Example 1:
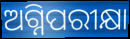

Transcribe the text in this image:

ଅଗ୍ନିପରୀକ୍ଷା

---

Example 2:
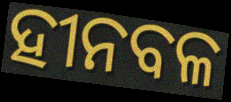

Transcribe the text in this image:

ହୀନବଳ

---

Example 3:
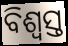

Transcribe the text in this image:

ବିଶ୍ବସ୍ତ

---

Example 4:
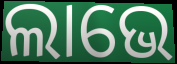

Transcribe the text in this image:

ଲାଭେ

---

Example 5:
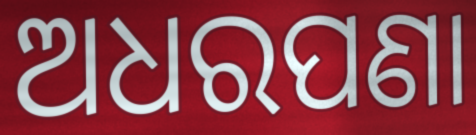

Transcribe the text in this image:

ଅଧରପଣା